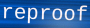
reproof